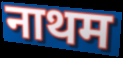
नाथम